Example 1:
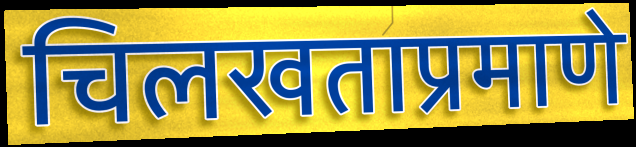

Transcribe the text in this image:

चिलखताप्रमाणे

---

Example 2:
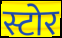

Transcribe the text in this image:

स्टोर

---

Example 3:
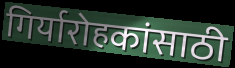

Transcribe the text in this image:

गिर्यारोहकांसाठी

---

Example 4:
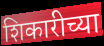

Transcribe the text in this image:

शिकारीच्या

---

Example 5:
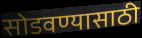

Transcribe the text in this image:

सोडवण्यासाठी